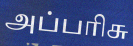
அப்பரிசு